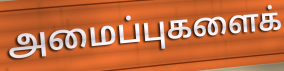
அமைப்புகளைக்